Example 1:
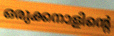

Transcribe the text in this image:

ഒരുക്കനാളിന്റെ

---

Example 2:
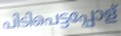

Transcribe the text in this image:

പിടിപെട്ടപ്പോള്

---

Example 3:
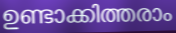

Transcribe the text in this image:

ഉണ്ടാക്കിത്തരാം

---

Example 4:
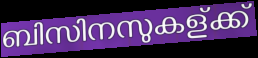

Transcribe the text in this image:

ബിസിനസുകള്ക്ക്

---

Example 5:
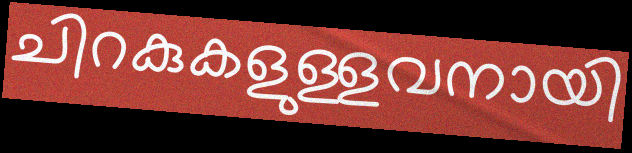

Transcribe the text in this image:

ചിറകുകളുള്ളവനായി